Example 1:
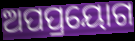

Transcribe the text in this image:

ଅପପ୍ରୟୋଗ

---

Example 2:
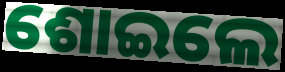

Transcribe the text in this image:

ଶୋଇଲେ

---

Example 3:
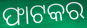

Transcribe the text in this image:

ଫାଟକର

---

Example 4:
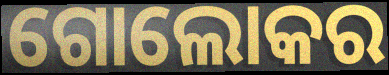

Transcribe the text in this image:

ଗୋଲୋକର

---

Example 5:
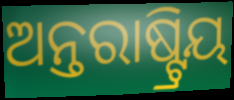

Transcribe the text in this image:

ଅନ୍ତରାଷ୍ଟ୍ରିୟ